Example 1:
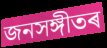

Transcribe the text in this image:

জনসঙ্গীতৰ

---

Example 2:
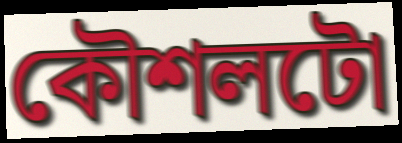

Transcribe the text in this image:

কৌশলটো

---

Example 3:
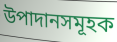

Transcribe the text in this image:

উপাদানসমূহক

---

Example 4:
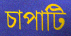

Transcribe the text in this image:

চাপাটি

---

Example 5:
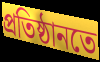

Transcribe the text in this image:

প্ৰতিষ্ঠানতে